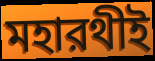
মহারথীই